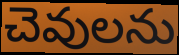
చెవులను